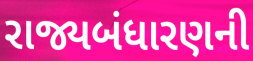
રાજ્યબંધારણની